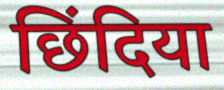
छिंदिया